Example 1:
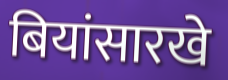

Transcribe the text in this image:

बियांसारखे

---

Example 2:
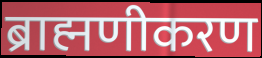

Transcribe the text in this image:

ब्राह्मणीकरण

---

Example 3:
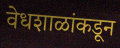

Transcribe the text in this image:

वेधशाळांकडून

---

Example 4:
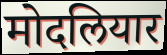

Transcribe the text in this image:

मोदलियार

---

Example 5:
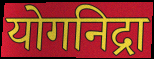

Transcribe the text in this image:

योगनिद्रा